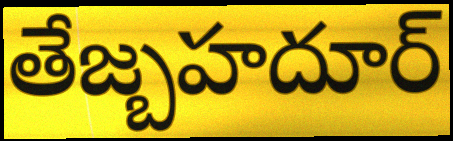
తేజ్బహదూర్